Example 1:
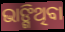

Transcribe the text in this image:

ଭାଙ୍ଗିଥିବା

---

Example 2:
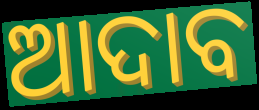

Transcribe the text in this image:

ଆଦାବ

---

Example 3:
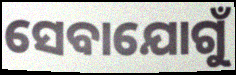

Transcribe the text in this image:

ସେବାଯୋଗୁଁ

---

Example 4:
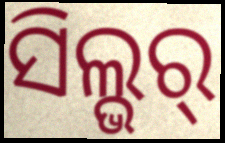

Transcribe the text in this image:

ସିଲ୍ଭର୍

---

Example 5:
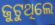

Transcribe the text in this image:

ଜୁଟୁଥିଲେ